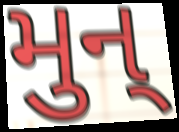
મુન્